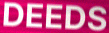
DEEDS